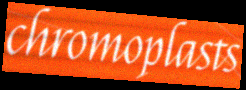
chromoplasts